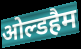
ओल्डहैम